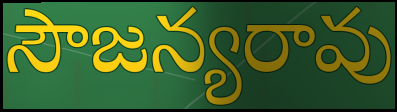
సౌజన్యరావు